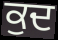
ਕੁਦ